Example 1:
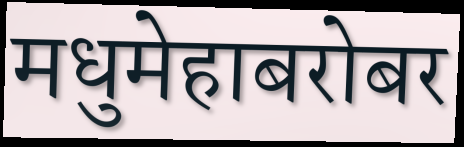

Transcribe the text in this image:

मधुमेहाबरोबर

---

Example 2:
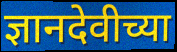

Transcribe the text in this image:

ज्ञानदेवीच्या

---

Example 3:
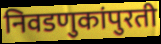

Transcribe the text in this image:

निवडणुकांपुरती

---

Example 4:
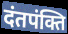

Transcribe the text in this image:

दंतपंक्ति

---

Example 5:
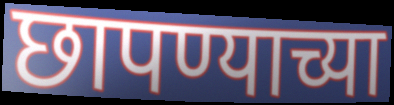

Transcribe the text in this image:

छापण्याच्या